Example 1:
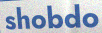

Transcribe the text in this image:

shobdo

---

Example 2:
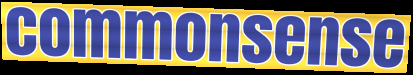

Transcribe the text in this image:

commonsense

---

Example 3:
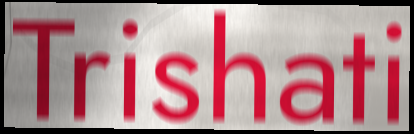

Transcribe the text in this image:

Trishati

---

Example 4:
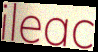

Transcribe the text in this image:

ileac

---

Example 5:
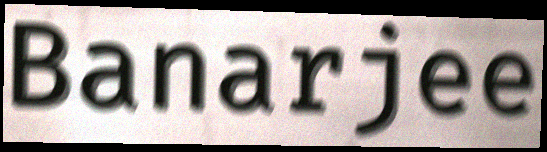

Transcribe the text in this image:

Banarjee